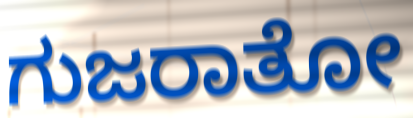
ಗುಜರಾತೋ